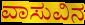
ವಾಸುವಿನ